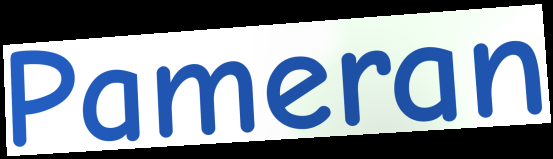
Pameran